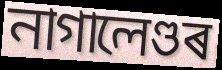
নাগালেণ্ডৰ